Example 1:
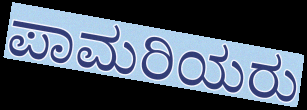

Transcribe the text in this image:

ಪಾಮರಿಯರು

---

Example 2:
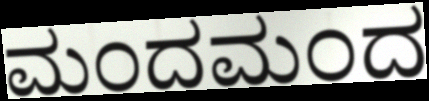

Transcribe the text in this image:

ಮಂದಮಂದ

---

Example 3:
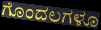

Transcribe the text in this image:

ಗೊಂದಲಗಳೂ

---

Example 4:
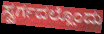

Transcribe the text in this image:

ಸ್ವರ್ಗದಲ್ಲೊಂದು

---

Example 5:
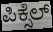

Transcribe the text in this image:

ಪಿಕ್ಸೆಲ್